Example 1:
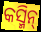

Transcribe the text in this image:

କସ୍ମିନ୍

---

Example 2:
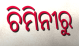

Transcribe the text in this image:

ଚିମିନୀରୁ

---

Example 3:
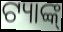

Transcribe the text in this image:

ଟ୍ୟାଙ୍କ୍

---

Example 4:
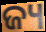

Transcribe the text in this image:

ଜ୍ୟ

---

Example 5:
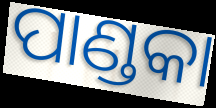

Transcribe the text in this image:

ପାଣ୍ଡକା